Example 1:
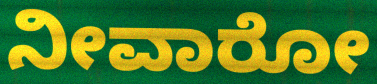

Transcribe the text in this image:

ನೀವಾರೋ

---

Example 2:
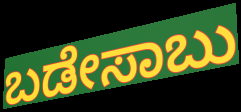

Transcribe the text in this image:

ಬಡೇಸಾಬು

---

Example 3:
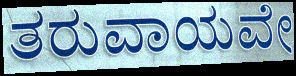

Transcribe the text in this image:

ತರುವಾಯವೇ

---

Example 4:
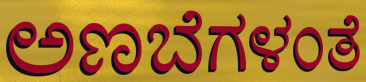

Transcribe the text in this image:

ಅಣಬೆಗಳಂತೆ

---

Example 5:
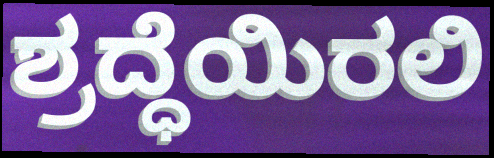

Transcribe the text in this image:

ಶ್ರದ್ಧೆಯಿರಲಿ